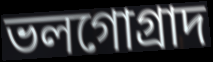
ভলগোগ্রাদ